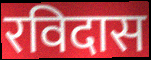
रविदास